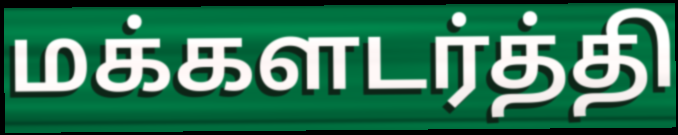
மக்களடர்த்தி